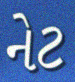
નેટ